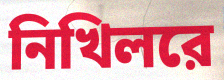
নিখিলরে